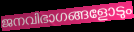
ജനവിഭാഗങ്ങളോടും